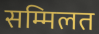
सम्मिलत